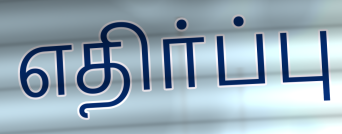
எதிர்ப்பு